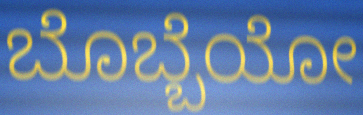
ಬೊಬ್ಬೆಯೋ